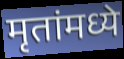
मृतांमध्ये